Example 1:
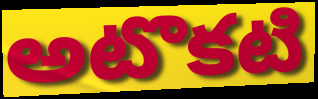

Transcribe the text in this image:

అటొకటి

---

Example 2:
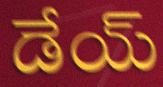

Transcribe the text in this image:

డేయ్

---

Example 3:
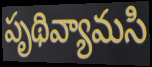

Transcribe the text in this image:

పృథివ్యామసి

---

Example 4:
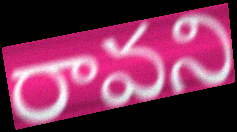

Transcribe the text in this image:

రావని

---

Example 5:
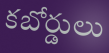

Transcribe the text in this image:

కబోర్డులు